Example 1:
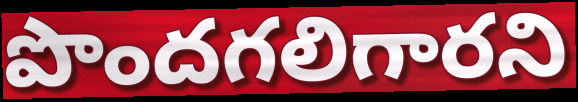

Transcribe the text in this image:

పొందగలిగారని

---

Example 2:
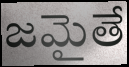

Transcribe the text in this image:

జమైతే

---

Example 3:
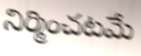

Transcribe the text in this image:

నిర్మించటమే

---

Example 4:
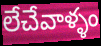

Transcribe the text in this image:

లేచేవాళ్ళం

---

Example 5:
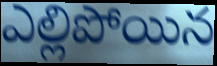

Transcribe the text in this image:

ఎల్లిపోయిన